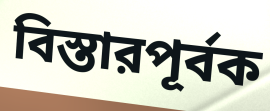
বিস্তারপূর্বক